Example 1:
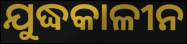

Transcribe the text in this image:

ଯୁଦ୍ଧକାଳୀନ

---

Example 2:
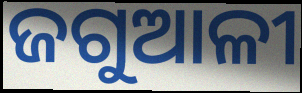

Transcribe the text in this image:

ଜଗୁଆଳୀ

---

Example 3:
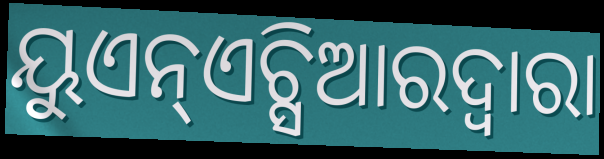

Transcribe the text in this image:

ୟୁଏନ୍ଏଚ୍ସିଆରଦ୍ୱାରା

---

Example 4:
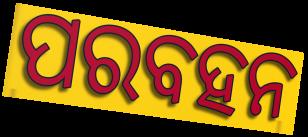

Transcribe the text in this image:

ପରବହନ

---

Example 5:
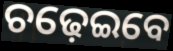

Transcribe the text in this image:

ଚଢ଼େଇବେ